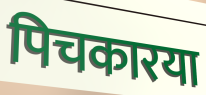
पिचकारया